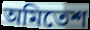
অমিতেশ